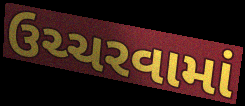
ઉચ્ચરવામાં